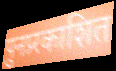
पुनप्र्रकाशित